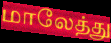
மாலேத்து